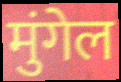
मुंगेल